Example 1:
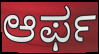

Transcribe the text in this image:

ಆರ್ಫ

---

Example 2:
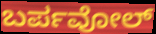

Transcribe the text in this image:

ಬರ್ಪವೋಲ್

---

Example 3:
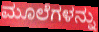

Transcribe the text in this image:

ಮೂಲೆಗಳನ್ನು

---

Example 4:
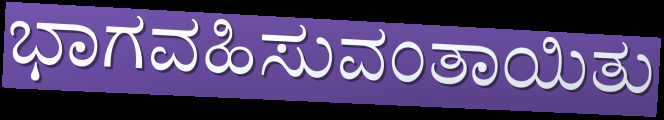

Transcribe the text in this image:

ಭಾಗವಹಿಸುವಂತಾಯಿತು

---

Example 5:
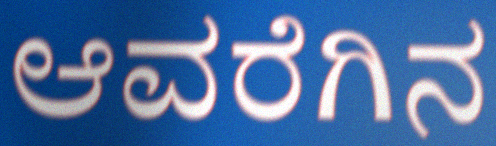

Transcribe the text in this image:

ಆವರೆಗಿನ